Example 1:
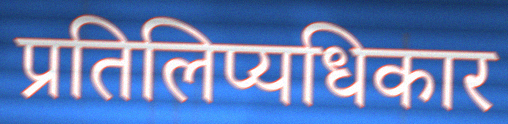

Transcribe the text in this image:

प्रतिलिप्यधिकार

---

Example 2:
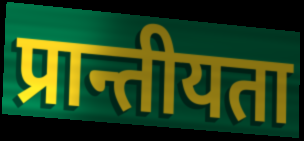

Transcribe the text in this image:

प्रान्तीयता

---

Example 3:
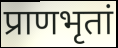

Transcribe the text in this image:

प्राणभृतां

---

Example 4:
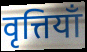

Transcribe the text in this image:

वृत्तियाँ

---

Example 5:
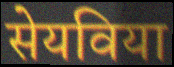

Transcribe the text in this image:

सेयविया